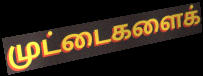
முட்டைகளைக்